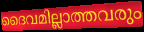
ദൈവമില്ലാത്തവരും